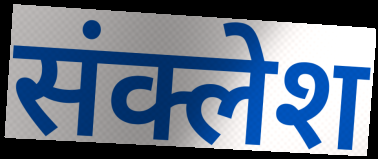
संक्लेश